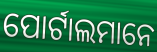
ପୋର୍ଟାଲମାନେ